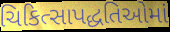
ચિકિત્સાપદ્ધતિઓમાં